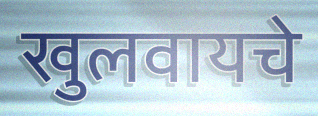
खुलवायचे